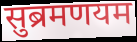
सुब्रमणयम